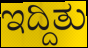
ಇದ್ದಿತು